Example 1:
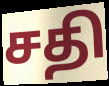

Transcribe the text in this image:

சதி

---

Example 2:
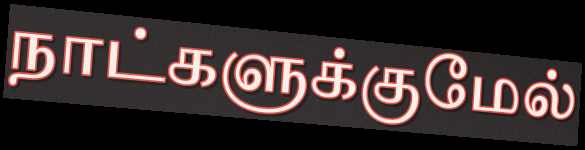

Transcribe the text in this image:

நாட்களுக்குமேல்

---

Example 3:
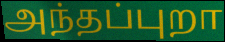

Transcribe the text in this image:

அந்தப்புறா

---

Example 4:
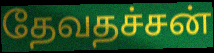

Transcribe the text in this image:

தேவதச்சன்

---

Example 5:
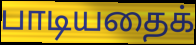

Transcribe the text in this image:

பாடியதைக்